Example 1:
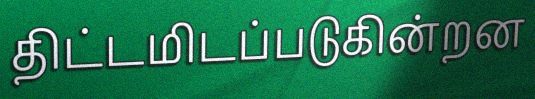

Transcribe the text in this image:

திட்டமிடப்படுகின்றன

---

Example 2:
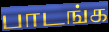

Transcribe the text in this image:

பாடங்க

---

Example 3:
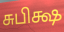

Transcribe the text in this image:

சுபிக்ஷ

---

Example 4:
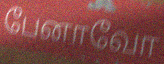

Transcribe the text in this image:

பேனாவோ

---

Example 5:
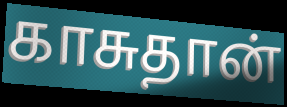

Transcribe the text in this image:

காசுதான்